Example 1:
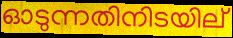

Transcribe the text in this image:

ഓടുന്നതിനിടയില്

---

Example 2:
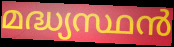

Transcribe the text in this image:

മദ്ധ്യസ്ഥൻ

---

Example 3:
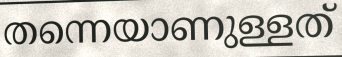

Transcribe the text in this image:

തന്നെയാണുള്ളത്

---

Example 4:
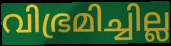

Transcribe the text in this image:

വിഭ്രമിച്ചില്ല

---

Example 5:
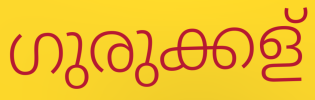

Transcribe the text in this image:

ഗുരുക്കള്